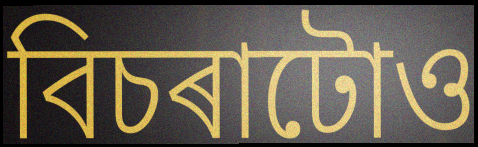
বিচৰাটোও